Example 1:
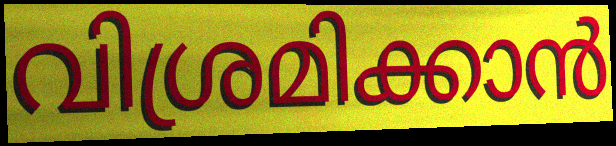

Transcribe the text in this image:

വിശ്രമിക്കാൻ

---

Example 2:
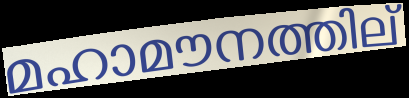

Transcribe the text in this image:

മഹാമൗനത്തില്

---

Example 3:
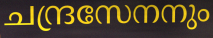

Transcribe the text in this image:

ചന്ദ്രസേനനും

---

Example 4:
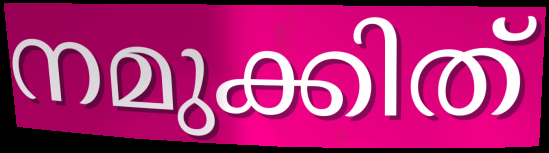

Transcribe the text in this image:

നമുക്കിത്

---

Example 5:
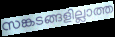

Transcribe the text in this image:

സങ്കടങ്ങളില്ലാത്ത